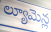
ల్యూమెన్ల